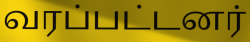
வரப்பட்டனர்